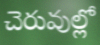
చెరువుల్లో